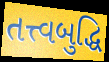
તત્ત્વબુદ્ધિ